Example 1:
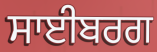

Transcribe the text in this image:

ਸਾਈਬਰਗ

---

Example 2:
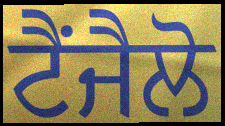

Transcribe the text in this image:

ਟੈਂਜੈਲੋ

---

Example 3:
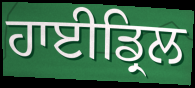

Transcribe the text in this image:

ਹਾਈਡ੍ਰਿਲ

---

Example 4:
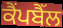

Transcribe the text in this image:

ਕੈਂਪਬੈੱਲ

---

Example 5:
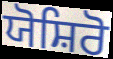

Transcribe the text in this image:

ਯੋਸ਼ਿਰੋ